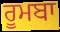
ਰੂਮਬਾ